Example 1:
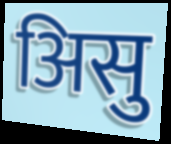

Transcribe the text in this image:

अिसु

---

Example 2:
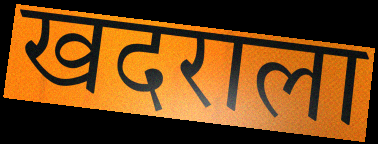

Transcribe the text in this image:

खदराला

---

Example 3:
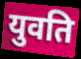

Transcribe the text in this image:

युवति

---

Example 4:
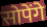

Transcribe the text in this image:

सोपेंगे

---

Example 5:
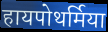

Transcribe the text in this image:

हायपोथर्मिया